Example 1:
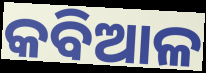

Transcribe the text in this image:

କବିଆଳ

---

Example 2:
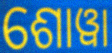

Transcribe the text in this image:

ଶୋୱା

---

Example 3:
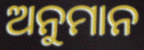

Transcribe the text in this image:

ଅନୁମାନ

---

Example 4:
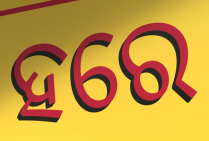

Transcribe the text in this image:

ହରେ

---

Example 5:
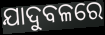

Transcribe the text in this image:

ଯାଦୁବଳରେ